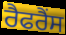
ਰੈਫਰੈਂਸ